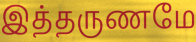
இத்தருணமே